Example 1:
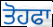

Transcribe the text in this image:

ਤੋਹਫਾ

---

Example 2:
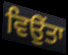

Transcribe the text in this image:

ਵਿਉਂਤਾ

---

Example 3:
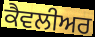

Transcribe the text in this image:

ਕੈਵਲੀਅਰ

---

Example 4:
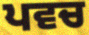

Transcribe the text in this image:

ਪਵਚ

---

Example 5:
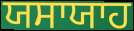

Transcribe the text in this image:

ਯਸਾਯਾਹ